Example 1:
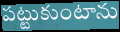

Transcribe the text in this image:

పట్టుకుంటాను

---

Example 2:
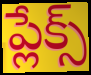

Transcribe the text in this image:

ప్లేక్స్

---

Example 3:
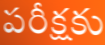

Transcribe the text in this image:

పరీక్షకు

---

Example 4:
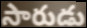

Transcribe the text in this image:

సారుడు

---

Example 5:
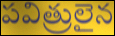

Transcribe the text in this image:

పవిత్రులైన